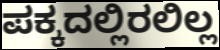
ಪಕ್ಕದಲ್ಲಿರಲಿಲ್ಲ